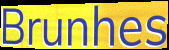
Brunhes